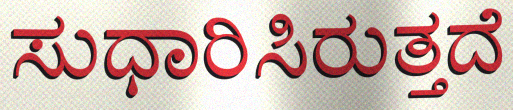
ಸುಧಾರಿಸಿರುತ್ತದೆ